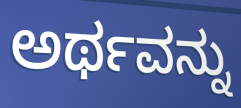
ಅರ್ಥವನ್ನು